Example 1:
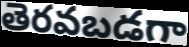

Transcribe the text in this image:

తెరవబడగా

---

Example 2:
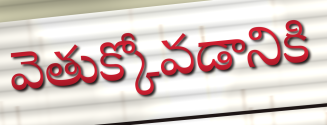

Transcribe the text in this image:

వెతుక్కోవడానికి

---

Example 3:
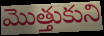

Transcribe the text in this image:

మొత్తుకుని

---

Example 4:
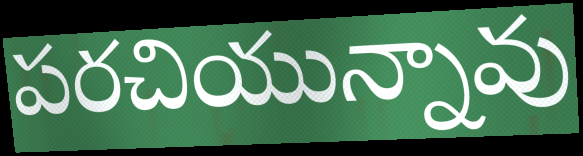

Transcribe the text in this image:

పరచియున్నావు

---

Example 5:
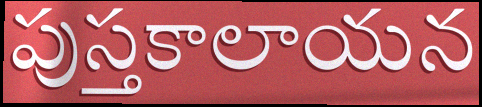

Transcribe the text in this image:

పుస్తకాలాయన